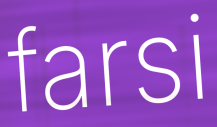
farsi